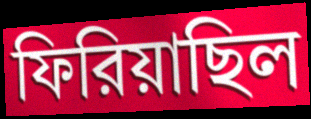
ফিরিয়াছিল